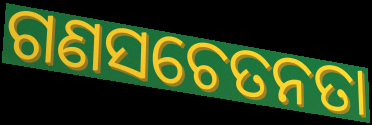
ଗଣସଚେତନତା